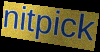
nitpick